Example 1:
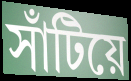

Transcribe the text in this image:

সাঁটিয়ে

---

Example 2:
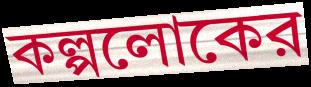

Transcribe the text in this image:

কল্পলোকের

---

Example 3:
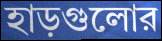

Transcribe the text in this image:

হাড়গুলোর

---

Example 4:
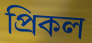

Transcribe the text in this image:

প্রিকল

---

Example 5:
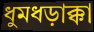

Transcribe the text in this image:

ধুমধড়াক্কা